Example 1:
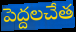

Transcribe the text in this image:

పెద్దలచేత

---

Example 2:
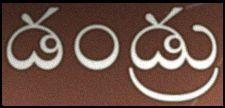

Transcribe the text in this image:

డండ్రు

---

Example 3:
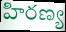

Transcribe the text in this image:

హిరణ్య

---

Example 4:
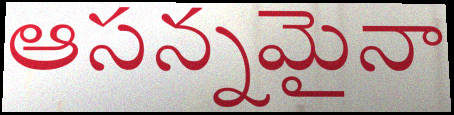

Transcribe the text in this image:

ఆసన్నమైనా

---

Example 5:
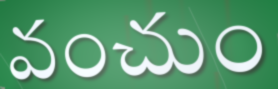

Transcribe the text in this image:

వంచుం